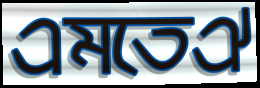
এমতেঐ